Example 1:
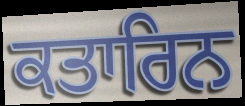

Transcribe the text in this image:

ਕਤਾਰਿਨ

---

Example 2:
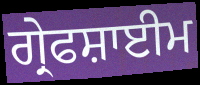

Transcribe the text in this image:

ਗ੍ਰੇਫਸ਼ਾਈਮ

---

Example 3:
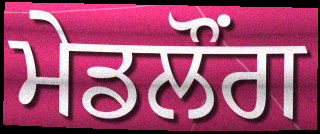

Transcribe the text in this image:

ਮੇਡਲੌਂਗ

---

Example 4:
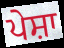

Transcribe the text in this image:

ਪੇਸ਼ਾ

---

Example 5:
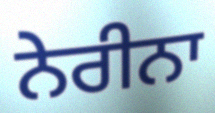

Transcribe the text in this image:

ਨੇਰੀਨਾ